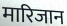
मारिजान